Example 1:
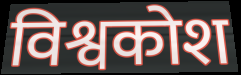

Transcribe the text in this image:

विश्वकोश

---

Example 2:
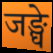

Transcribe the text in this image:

जङ्घे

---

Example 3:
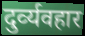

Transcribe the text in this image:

दुर्व्‍यवहार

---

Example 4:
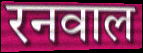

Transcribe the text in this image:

रनवाल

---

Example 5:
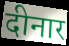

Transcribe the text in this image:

दीनार